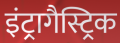
इंट्रागैस्ट्रिक